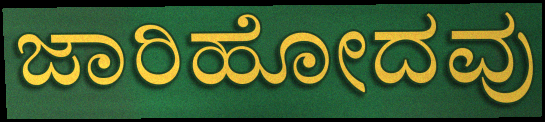
ಜಾರಿಹೋದವು